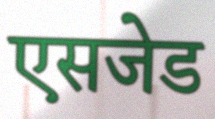
एसजेड